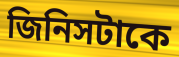
জিনিসটাকে